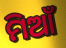
ମିଆଁ